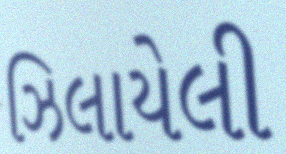
ઝિલાયેલી